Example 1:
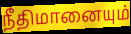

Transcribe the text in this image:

நீதிமானையும்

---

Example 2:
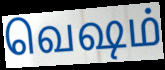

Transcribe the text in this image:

வெஷம்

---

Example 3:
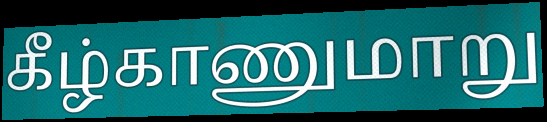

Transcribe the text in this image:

கீழ்காணுமாறு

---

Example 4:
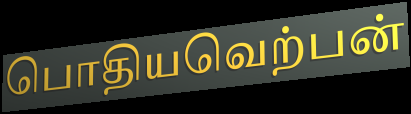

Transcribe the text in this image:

பொதியவெற்பன்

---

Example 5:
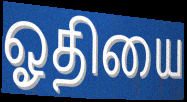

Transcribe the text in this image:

ஓதியை